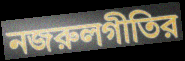
নজরুলগীতির